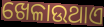
ଖେଳାଉଥାଏ